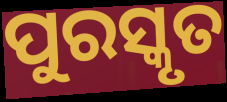
ପୁରସ୍କୃତ